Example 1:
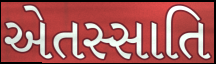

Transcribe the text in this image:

એતસ્સાતિ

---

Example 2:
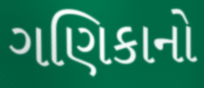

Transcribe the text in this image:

ગણિકાનો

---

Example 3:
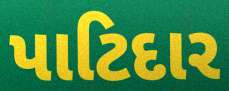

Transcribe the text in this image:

પાટિદાર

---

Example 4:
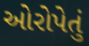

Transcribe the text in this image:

ઓરોપેતું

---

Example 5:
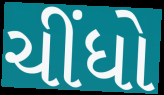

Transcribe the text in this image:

ચીંધો